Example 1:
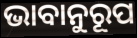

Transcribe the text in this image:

ଭାବାନୁରୂପ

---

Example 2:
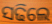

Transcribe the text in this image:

ସଢିଲେ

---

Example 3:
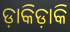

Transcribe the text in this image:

ଡ଼ାକିଡ଼ାକି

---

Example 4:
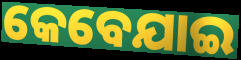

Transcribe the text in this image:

କେବେଯାଇ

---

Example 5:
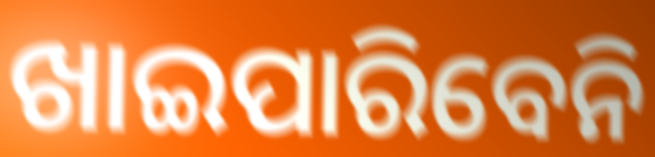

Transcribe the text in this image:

ଖାଇପାରିବେନି